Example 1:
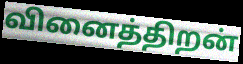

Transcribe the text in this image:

வினைத்திறன்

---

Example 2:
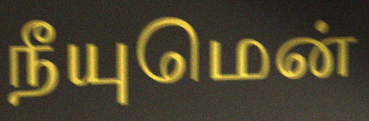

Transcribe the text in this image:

நீயுமென்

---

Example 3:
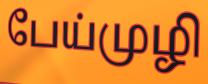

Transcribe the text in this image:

பேய்முழி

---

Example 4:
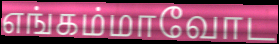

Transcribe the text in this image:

எங்கம்மாவோட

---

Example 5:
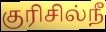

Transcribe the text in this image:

குரிசில்நீ